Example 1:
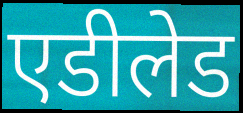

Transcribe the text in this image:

एडीलेड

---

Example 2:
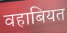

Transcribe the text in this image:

वहाबियत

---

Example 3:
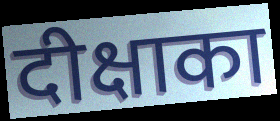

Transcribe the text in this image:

दीक्षाका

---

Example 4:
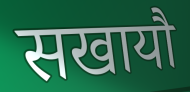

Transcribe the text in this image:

सखायौ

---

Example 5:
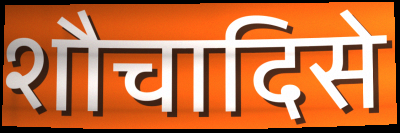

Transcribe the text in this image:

शौचादिसे